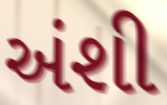
અંશી